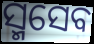
ସ୍ମସେବ